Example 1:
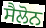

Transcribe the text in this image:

ਸੈਲੋਨ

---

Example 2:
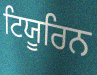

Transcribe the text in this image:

ਟਿਯੂਰਿਨ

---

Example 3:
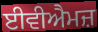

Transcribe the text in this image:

ਈਵੀਐਮਜ਼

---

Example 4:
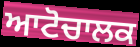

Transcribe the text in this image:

ਆਟੋਚਾਲਕ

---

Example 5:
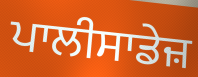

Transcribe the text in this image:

ਪਾਲੀਸਾਡੇਜ਼